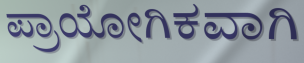
ಪ್ರಾಯೋಗಿಕವಾಗಿ